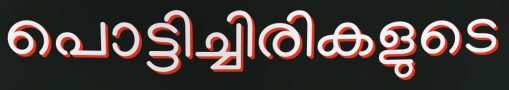
പൊട്ടിച്ചിരികളുടെ